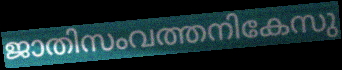
ജാതിസംവത്തനികേസു